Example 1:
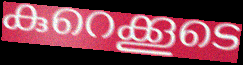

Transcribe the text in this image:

കുറെക്കൂടെ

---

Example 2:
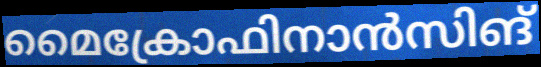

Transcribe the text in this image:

മൈക്രോഫിനാൻസിങ്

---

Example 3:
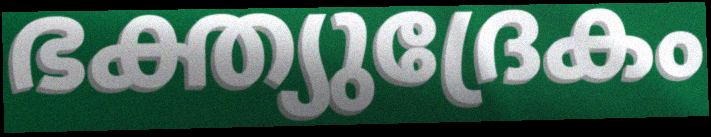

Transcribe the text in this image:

ഭക്ത്യുദ്രേകം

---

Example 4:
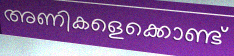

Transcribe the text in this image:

അണികളെക്കൊണ്ട്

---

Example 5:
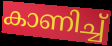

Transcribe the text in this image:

കാണിച്ച്